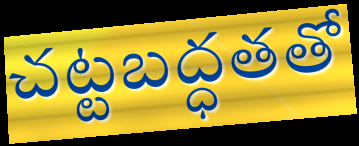
చట్టబద్ధతతో